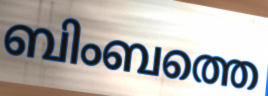
ബിംബത്തെ